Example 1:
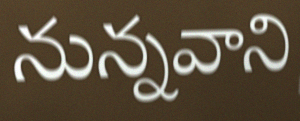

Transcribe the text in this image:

నున్నవాని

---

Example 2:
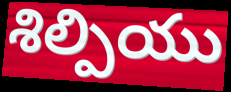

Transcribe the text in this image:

శిల్పియు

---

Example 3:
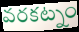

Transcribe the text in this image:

వరకట్నం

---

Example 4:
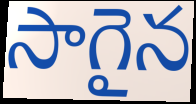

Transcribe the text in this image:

సాగైన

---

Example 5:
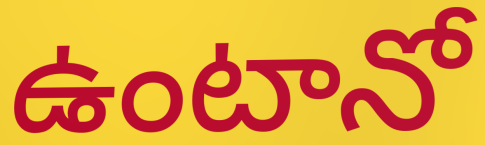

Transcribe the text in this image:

ఉంటానో